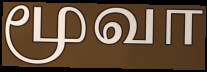
மூவா